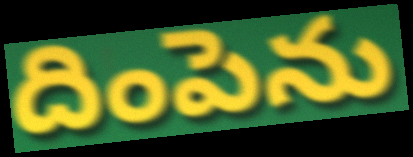
దింపెను